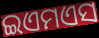
ଇଏମଏସ